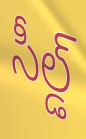
సీల్డ్